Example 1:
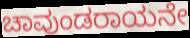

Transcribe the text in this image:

ಚಾವುಂಡರಾಯನೇ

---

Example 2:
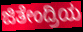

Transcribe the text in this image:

ಜಿತೇಂದ್ರಿಯ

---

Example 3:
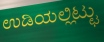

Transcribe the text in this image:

ಉಡಿಯಲ್ಲಿಟ್ಟು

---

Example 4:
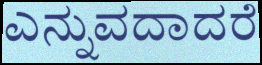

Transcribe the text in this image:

ಎನ್ನುವದಾದರೆ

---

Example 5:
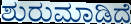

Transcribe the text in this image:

ಶುರುಮಾಡಿದೆ